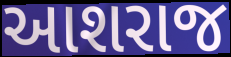
આશરાજ